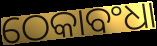
ଠେକାବଂଧା